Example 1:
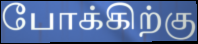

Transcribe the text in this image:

போக்கிற்கு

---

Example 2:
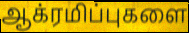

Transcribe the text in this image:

ஆக்ரமிப்புகளை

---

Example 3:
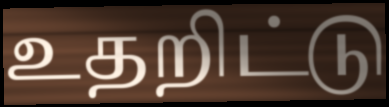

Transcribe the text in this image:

உதறிட்டு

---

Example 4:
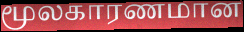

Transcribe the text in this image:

மூலகாரணமான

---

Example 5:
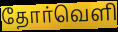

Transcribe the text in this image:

தோர்வெளி